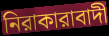
নিরাকারাবাদী